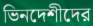
ভিনদেশীদের